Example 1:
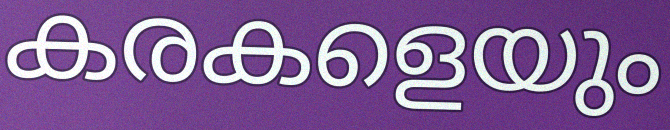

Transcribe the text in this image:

കരകളെയും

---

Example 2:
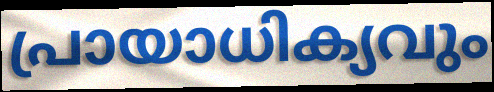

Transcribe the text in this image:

പ്രായാധിക്യവും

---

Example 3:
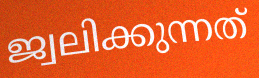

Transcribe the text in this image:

ജ്വലിക്കുന്നത്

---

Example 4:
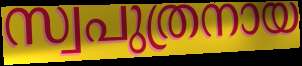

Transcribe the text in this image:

സ്വപുത്രനായ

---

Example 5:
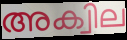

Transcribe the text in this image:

അക്വില